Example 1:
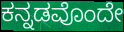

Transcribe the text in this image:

ಕನ್ನಡವೊಂದೇ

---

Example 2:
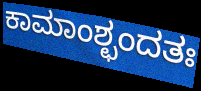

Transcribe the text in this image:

ಕಾಮಾಂಶ್ಛಂದತಃ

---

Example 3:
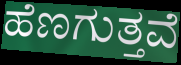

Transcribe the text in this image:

ಹೆಣಗುತ್ತವೆ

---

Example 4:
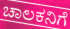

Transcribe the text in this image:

ಚಾಲಕನಿಗೆ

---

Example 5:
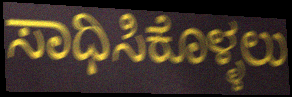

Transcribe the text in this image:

ಸಾಧಿಸಿಕೊಳ್ಳಲು